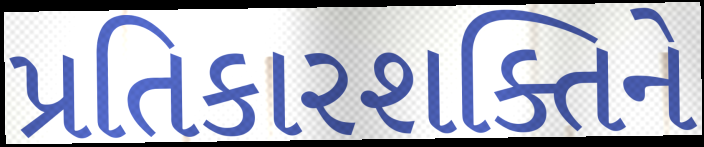
પ્રતિકારશક્તિને